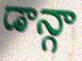
డాన్గా